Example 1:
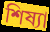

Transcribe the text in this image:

শিষ্যা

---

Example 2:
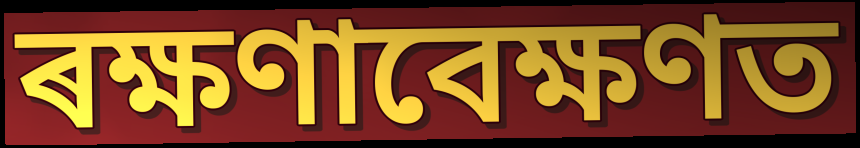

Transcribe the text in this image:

ৰক্ষণাবেক্ষণত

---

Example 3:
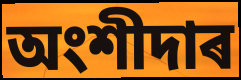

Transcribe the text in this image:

অংশীদাৰ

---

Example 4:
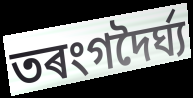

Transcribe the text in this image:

তৰংগদৈৰ্ঘ্য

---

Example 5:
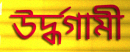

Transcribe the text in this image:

উৰ্দ্ধগামী